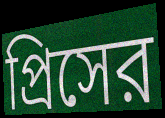
প্রিসের